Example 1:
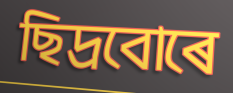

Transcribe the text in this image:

ছিদ্ৰবোৰে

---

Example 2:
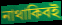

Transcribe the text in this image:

নাথাকিবই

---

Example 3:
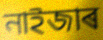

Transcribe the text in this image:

নাইজাৰ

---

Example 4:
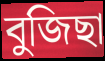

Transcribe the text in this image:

বুজিছা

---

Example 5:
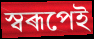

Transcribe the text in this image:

স্বৰূপেই